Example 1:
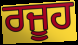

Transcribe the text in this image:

ਰਜੂਹ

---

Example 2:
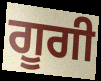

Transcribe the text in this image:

ਗੂਗੀ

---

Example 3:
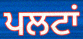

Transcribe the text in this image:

ਪਲਟਾਂ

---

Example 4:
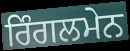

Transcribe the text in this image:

ਰਿੰਗਲਮੇਨ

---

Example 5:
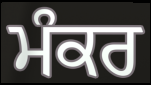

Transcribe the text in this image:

ਮੰਕਰ